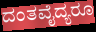
ದಂತವೈದ್ಯರೂ